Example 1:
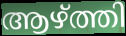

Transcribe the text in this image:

ആഴ്ത്തി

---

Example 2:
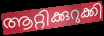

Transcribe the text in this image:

ആറ്റിക്കുറുക്കി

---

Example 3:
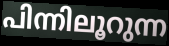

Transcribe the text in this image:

പിന്നിലൂറുന്ന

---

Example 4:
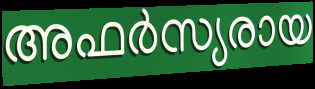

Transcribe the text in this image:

അഫർസ്യരായ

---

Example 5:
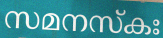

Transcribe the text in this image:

സമനസ്കഃ